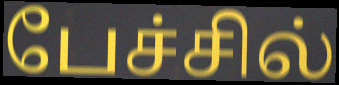
பேச்சில்